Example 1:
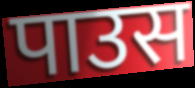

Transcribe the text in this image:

पाउस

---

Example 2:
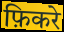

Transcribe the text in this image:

फ़िकरे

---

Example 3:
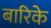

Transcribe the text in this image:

बारिके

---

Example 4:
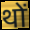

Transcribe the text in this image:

थों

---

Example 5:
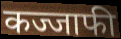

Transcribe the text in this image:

कज्जाफी